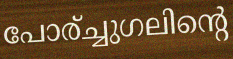
പോര്ച്ചുഗലിന്റെ